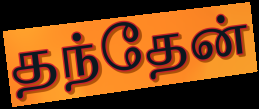
தந்தேன்